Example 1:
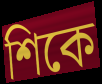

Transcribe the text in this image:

শিকে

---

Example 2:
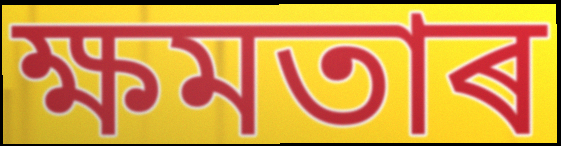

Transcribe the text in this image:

ক্ষমতাৰ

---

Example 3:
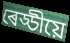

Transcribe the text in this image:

ৰেড্ডীয়ে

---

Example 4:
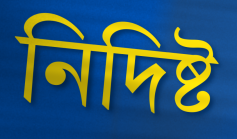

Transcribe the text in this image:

নিদিষ্ট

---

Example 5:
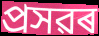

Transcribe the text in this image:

প্ৰসৱৰ